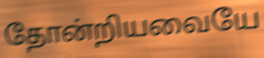
தோன்றியவையே